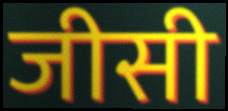
जीसी